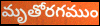
మృతోరగముం